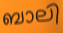
ബാലി